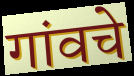
गांवचे